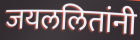
जयललितांनी